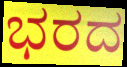
ಭರದ